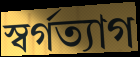
স্বর্গত্যাগ